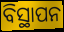
ବିସ୍ଥାପନ